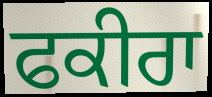
ਫਕੀਰਾ